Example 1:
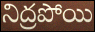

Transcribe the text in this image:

నిద్రపోయి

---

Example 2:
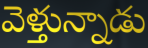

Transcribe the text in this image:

వెళ్తున్నాడు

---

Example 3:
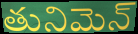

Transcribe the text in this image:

తునిమెన్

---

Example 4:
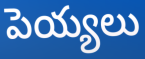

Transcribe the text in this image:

పెయ్యలు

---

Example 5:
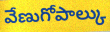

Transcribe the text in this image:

వేణుగోపాల్కు